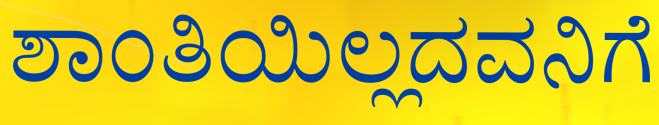
ಶಾಂತಿಯಿಲ್ಲದವನಿಗೆ